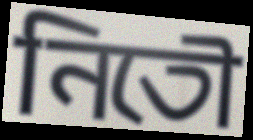
নিতৌ